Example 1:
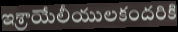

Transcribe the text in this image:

ఇశ్రాయేలీయులకందరికి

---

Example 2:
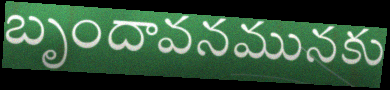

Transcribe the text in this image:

బృందావనమునకు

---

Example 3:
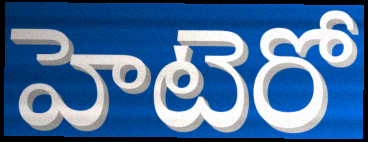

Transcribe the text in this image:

హెటెరో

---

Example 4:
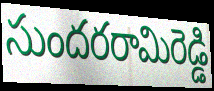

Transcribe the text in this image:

సుందరరామిరెడ్డి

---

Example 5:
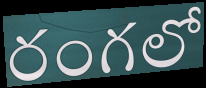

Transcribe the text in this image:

రంగలో